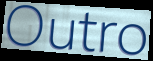
Outro